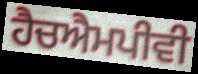
ਹੈਚਐਮਪੀਵੀ